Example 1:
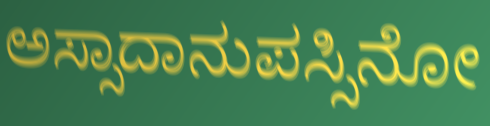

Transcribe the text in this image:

ಅಸ್ಸಾದಾನುಪಸ್ಸಿನೋ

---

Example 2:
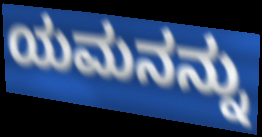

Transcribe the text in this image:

ಯಮನನ್ನು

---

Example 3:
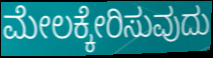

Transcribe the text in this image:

ಮೇಲಕ್ಕೇರಿಸುವುದು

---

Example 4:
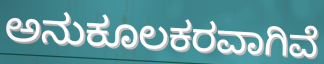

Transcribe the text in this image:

ಅನುಕೂಲಕರವಾಗಿವೆ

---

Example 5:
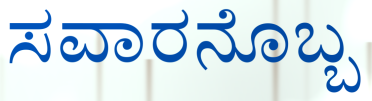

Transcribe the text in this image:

ಸವಾರನೊಬ್ಬ